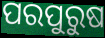
ପରପୁରୁଷ